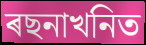
ৰছনাখনিত